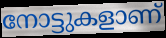
നോട്ടുകളാണ്